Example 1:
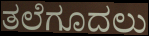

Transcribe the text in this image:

ತಲೆಗೂದಲು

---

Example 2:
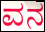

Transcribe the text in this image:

ವನ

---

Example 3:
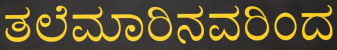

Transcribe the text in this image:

ತಲೆಮಾರಿನವರಿಂದ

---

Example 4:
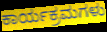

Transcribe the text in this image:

ಕಾರ್ಯಕ್ರಮಗಳು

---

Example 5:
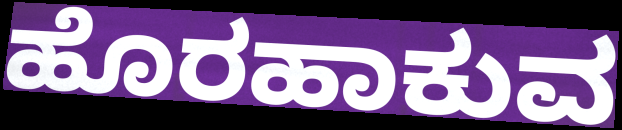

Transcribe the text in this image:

ಹೊರಹಾಕುವ